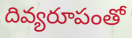
దివ్యరూపంతో